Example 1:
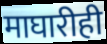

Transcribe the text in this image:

माघारीही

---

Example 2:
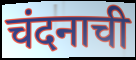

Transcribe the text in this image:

चंदनाची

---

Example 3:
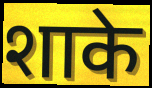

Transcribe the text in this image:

शाके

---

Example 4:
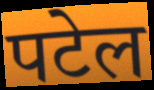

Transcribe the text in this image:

पटेल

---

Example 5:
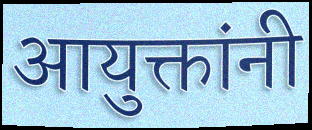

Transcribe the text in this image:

आयुक्तांनी